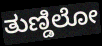
ತುಣ್ಡಿಲೋ